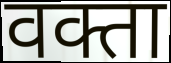
वक्ता